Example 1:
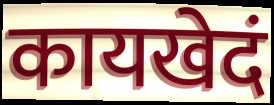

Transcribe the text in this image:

कायखेदं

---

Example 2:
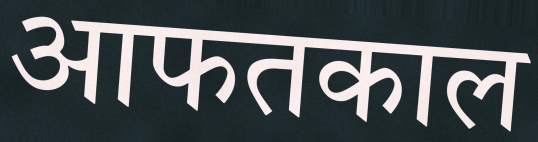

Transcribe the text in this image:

आफतकाल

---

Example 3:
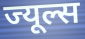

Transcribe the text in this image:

ज्यूल्स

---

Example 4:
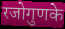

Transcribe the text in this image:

रजोगुणके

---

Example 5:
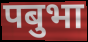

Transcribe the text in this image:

पबुभा